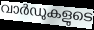
വാർഡുകളുടെ